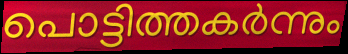
പൊട്ടിത്തകർന്നും